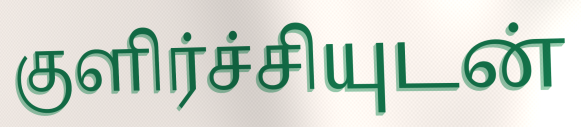
குளிர்ச்சியுடன்